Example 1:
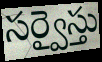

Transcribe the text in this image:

సర్వైస్తు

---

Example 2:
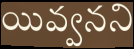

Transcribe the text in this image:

యివ్వనని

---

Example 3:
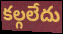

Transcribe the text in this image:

కల్గలేదు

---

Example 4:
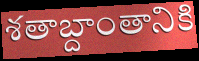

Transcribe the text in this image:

శతాబ్దాంతానికి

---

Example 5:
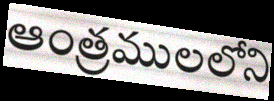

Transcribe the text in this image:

ఆంత్రములలోని